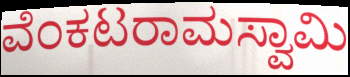
ವೆಂಕಟರಾಮಸ್ವಾಮಿ